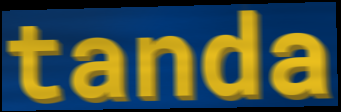
tanda